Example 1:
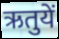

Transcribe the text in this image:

ऋतुयें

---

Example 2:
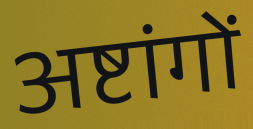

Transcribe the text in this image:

अष्टांगों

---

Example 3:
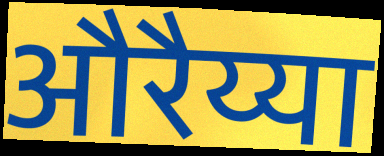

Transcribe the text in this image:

औरैय्या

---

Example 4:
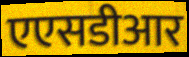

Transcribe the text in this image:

एएसडीआर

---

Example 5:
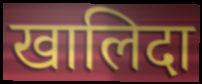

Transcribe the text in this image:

खालिदा